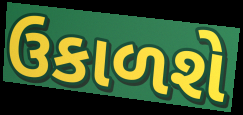
ઉકાળશે